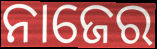
ନାଜେର